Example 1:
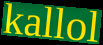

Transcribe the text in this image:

kallol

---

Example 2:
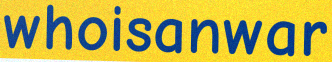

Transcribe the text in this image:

whoisanwar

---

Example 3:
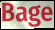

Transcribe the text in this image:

Bage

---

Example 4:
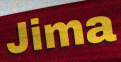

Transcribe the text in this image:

Jima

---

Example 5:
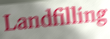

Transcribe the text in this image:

Landfilling